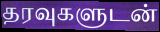
தரவுகளுடன்